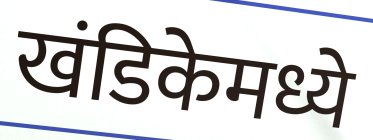
खंडिकेमध्ये